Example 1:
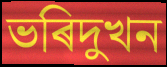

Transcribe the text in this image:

ভৰিদুখন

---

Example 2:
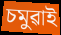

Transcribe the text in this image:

চমুৱাই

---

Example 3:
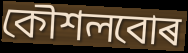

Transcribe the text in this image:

কৌশলবোৰ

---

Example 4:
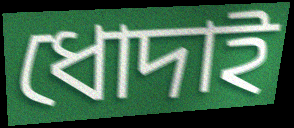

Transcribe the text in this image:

ধোদাই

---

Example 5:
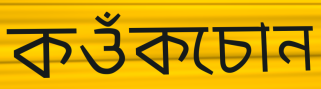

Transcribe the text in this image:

কওঁকচোন